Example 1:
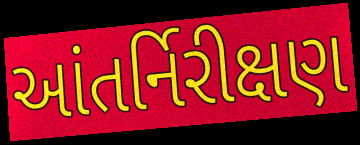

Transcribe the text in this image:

આંતર્નિરીક્ષણ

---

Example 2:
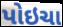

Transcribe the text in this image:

પોઇચા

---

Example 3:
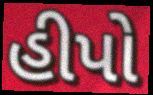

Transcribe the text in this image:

હીપો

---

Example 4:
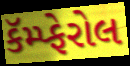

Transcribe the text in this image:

કૅમ્પ્ફેરોલ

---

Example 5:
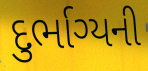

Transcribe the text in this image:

દુર્ભાગ્યની